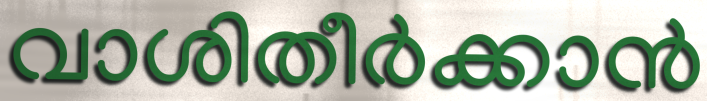
വാശിതീർക്കാൻ